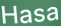
Hasa